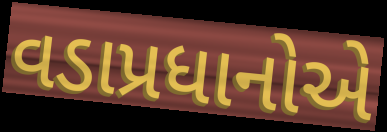
વડાપ્રધાનોએ